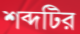
শব্দটির